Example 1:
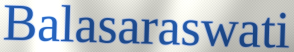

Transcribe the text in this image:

Balasaraswati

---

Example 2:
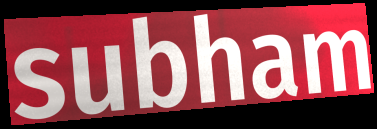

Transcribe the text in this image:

subham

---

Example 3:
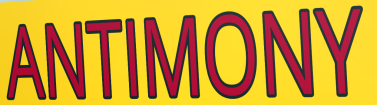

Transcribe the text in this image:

ANTIMONY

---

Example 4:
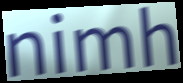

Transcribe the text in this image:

nimh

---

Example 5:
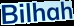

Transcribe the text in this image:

Bilhah